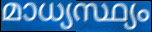
മാധ്യസ്ഥ്യം